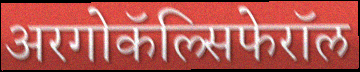
अरगोकॅल्सिफेरॉल